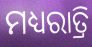
ମଧ୍ୟରାତ୍ରି